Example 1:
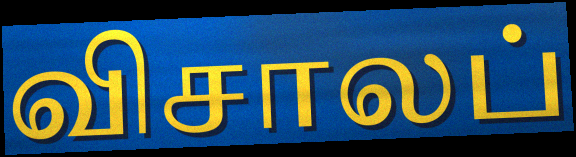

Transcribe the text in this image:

விசாலப்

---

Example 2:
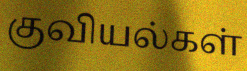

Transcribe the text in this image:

குவியல்கள்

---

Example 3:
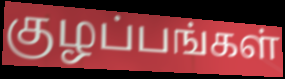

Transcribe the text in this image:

குழப்பங்கள்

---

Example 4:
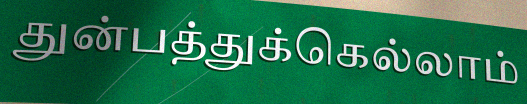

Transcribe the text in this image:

துன்பத்துக்கெல்லாம்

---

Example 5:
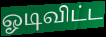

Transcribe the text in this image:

ஓடிவிட்ட